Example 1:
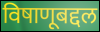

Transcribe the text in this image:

विषाणूबद्दल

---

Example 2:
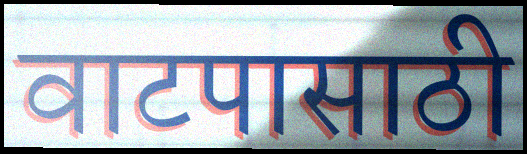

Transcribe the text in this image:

वाटपासाठी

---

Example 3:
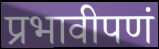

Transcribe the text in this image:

प्रभावीपणं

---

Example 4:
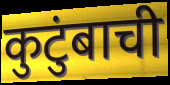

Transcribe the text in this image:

कुटुंबाची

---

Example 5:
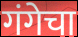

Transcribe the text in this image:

गंगेचा